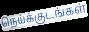
நெய்க்குடங்கள்